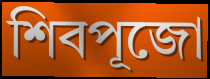
শিবপূজো